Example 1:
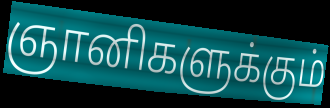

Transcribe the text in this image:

ஞானிகளுக்கும்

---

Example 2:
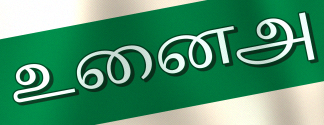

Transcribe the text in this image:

உனைஅ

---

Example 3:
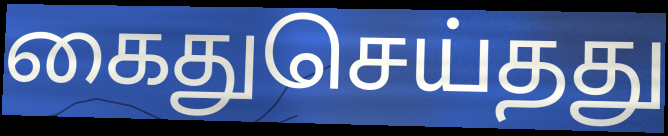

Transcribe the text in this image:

கைதுசெய்தது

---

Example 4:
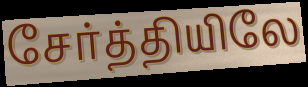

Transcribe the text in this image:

சேர்த்தியிலே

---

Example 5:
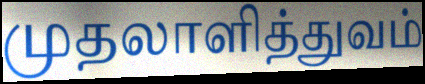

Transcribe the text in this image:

முதலாளித்துவம்